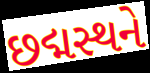
છદ્મસ્થને